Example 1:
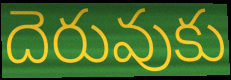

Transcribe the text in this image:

దెరువుకు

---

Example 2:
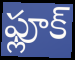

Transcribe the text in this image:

ఫ్లూక్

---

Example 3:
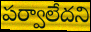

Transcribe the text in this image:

పర్వాలేదని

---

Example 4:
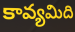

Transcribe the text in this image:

కావ్యమిది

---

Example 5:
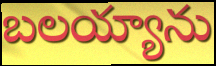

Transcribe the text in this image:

బలయ్యాను